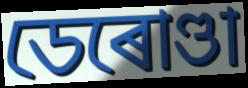
ডেৰোণ্ডা